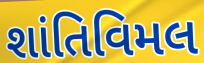
શાંતિવિમલ